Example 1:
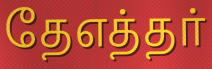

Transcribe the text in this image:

தேஎத்தர்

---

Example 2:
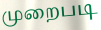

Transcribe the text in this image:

முறைபடி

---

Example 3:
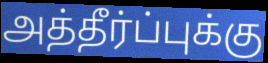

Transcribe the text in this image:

அத்தீர்ப்புக்கு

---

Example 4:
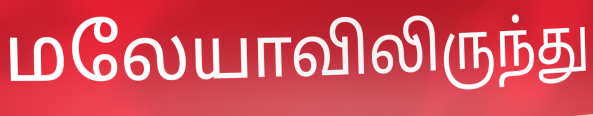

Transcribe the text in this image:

மலேயாவிலிருந்து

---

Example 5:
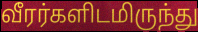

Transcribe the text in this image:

வீரர்களிடமிருந்து